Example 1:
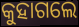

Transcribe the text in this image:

କୁହାଗଲେ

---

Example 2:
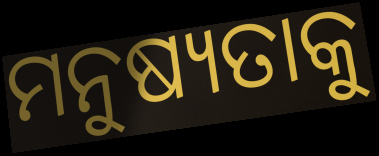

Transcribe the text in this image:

ମନୁଷ୍ୟତାକୁ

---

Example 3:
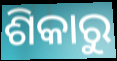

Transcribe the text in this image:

ଶିକାରୁ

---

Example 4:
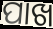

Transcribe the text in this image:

ପାଖ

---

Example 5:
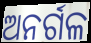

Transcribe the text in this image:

ଅନର୍ଗଳ